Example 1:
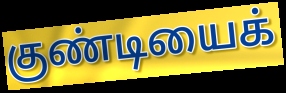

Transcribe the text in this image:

குண்டியைக்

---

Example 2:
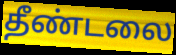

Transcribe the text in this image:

தீண்டலை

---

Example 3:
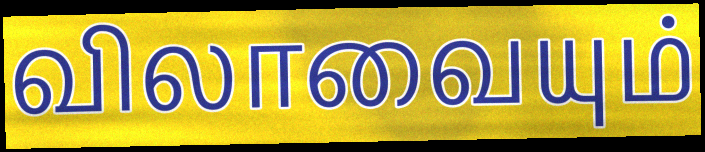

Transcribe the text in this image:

விலாவையும்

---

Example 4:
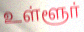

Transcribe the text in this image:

உள்ளூர்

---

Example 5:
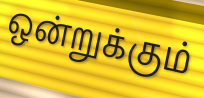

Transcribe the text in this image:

ஒன்றுக்கும்